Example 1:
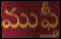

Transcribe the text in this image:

ముఫ్తీ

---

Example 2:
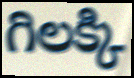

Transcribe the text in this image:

గిలక్కి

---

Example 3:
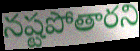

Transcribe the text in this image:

నష్టపోతారని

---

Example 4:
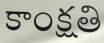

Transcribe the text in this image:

కాంక్షతి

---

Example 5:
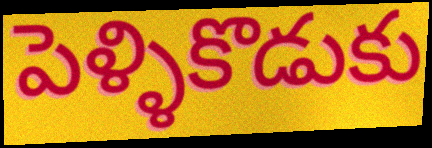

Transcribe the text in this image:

పెళ్ళికొడుకు